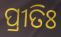
ପ୍ରୀତିଃ